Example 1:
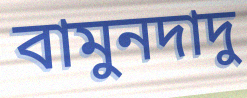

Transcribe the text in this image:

বামুনদাদু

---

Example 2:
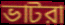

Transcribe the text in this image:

ভাটরা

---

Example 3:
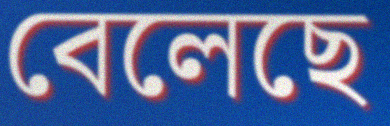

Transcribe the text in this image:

বেলেছে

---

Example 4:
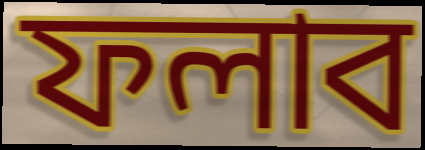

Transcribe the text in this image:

ফলাব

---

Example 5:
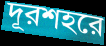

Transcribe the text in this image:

দূরশহরে